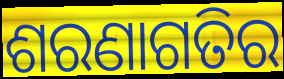
ଶରଣାଗତିର